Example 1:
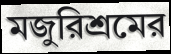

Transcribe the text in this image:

মজুরিশ্রমের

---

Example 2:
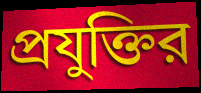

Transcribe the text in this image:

প্রযুক্তির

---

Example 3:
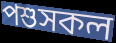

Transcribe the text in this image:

পশুসকল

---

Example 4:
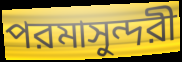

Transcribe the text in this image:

পরমাসুন্দরী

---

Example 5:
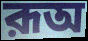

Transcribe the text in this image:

রূঅ